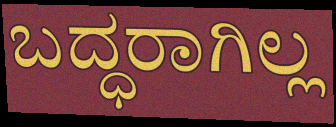
ಬದ್ಧರಾಗಿಲ್ಲ